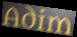
Adim